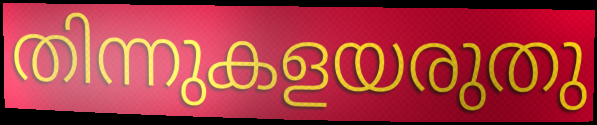
തിന്നുകളയരുതു